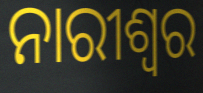
ନାରୀଶ୍ବର